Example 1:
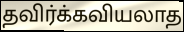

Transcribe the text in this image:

தவிர்க்கவியலாத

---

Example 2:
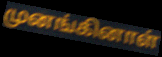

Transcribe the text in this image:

முனங்கினாள்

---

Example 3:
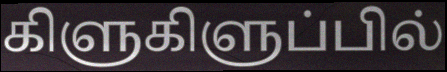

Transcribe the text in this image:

கிளுகிளுப்பில்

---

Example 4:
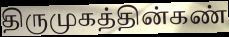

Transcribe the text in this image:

திருமுகத்தின்கண்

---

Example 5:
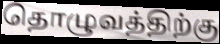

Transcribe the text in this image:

தொழுவத்திற்கு